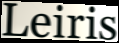
Leiris